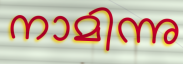
നാമിന്നു